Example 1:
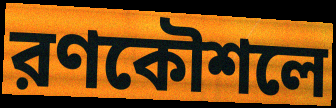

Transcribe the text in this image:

রণকৌশলে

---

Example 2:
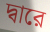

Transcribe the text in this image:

দ্বারে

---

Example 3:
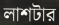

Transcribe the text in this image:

লাশটার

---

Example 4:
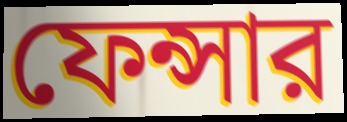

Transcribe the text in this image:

ফেন্সার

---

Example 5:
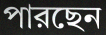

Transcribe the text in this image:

পারছেন